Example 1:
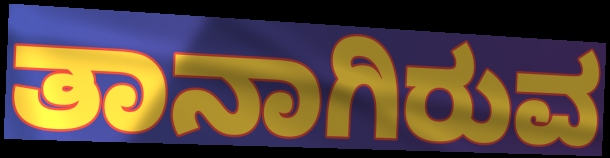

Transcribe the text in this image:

ತಾನಾಗಿರುವ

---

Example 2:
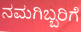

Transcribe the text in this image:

ನಮಗಿಬ್ಬರಿಗೆ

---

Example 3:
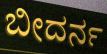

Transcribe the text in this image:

ಬೀದರ್ನ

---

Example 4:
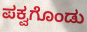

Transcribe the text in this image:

ಪಕ್ವಗೊಂಡು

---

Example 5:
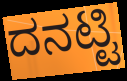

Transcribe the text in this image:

ದನಟ್ಟಿ